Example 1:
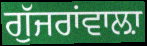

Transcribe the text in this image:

ਗੁੱਜਰਾਂਵਾਲ਼ਾ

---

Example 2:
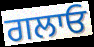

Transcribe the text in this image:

ਗਲਾਓ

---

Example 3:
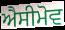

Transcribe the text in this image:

ਐਸੀਮੋਵ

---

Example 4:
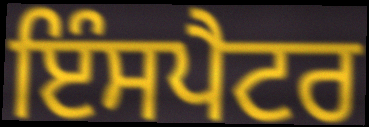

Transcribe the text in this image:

ਇੰਸਪੈਟਰ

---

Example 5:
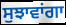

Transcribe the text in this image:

ਸੁਝਾਵਾਂਗਾ